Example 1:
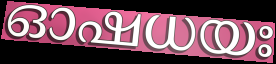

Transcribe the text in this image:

ഓഷധയഃ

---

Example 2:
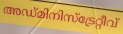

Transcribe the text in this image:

അഡ്മിനിസ്ട്രേറ്റീവ്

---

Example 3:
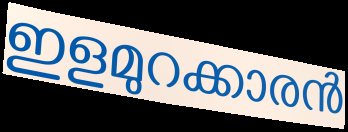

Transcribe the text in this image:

ഇളമുറക്കാരൻ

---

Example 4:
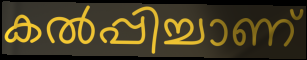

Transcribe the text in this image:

കൽപ്പിച്ചാണ്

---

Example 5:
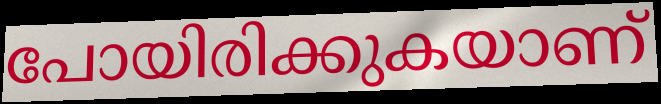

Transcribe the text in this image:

പോയിരിക്കുകയാണ്